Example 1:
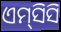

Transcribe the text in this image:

ଏମ୍‌ସିସି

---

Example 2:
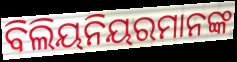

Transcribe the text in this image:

ବିଲିୟନିୟରମାନଙ୍କ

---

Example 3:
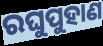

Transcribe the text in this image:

ରଘୁପୁହାଣ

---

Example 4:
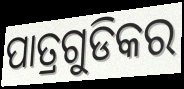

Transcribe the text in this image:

ପାତ୍ରଗୁଡିକର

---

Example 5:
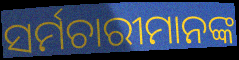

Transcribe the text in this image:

ସର୍ମଚାରୀମାନଙ୍କ